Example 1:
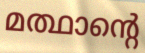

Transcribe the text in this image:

മത്ഥാന്റെ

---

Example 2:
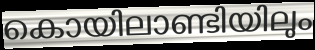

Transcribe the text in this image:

കൊയിലാണ്ടിയിലും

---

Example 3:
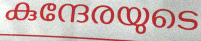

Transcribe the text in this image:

കുന്ദേരയുടെ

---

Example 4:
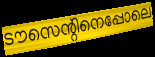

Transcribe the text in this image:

ടൗസെന്റിനെപ്പോലെ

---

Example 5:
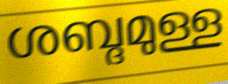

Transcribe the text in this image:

ശബ്ദമുള്ള